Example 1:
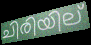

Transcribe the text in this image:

ചിരിയില്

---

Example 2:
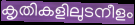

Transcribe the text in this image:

കൃതികളിലുടനീളം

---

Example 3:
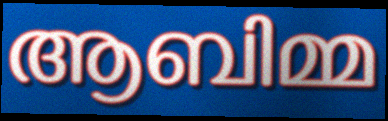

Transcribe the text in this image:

ആബിമ്മ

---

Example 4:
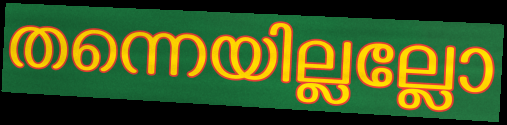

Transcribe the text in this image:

തന്നെയില്ലല്ലോ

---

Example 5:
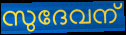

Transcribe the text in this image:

സുദേവന്